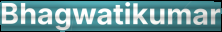
Bhagwatikumar